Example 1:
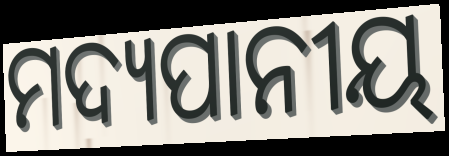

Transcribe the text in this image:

ମଦ୍ୟପାନୀୟ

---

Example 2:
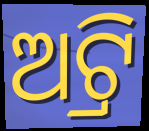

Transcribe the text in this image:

ଅଟ୍ରି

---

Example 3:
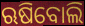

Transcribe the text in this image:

ଋଷିବୋଲି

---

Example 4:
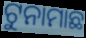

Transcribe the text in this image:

ଟୁନାମାଛ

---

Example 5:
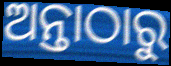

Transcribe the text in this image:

ଅନ୍ତାଠାରୁ